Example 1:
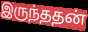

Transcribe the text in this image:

இருந்ததன்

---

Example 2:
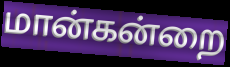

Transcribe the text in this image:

மான்கன்றை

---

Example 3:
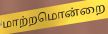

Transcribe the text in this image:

மாற்றமொன்றை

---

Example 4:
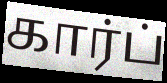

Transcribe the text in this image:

கார்ப்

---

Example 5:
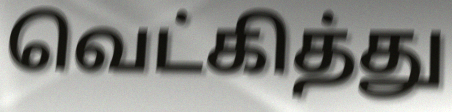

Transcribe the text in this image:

வெட்கித்து